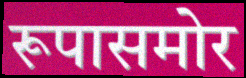
रूपासमोर